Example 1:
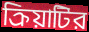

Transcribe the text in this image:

ক্রিয়াটির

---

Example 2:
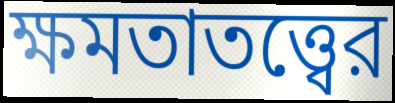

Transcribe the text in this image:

ক্ষমতাতত্ত্বের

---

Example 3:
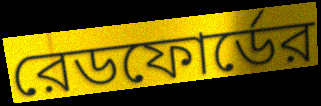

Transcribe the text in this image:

রেডফোর্ডের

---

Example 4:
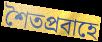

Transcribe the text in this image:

শৈতপ্রবাহে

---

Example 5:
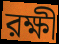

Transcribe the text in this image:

রক্ষী